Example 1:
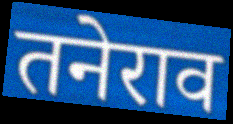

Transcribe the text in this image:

तनेराव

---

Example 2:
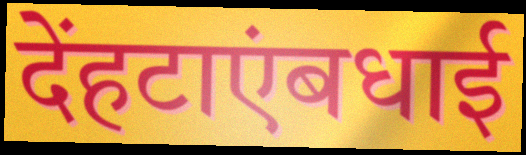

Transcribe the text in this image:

देंहटाएंबधाई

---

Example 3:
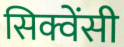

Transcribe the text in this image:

सिक्वेंसी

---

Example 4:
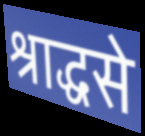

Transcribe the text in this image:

श्राद्धसे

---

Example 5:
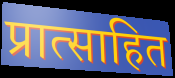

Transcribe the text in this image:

प्रात्साहित